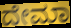
ದೇಮಾ